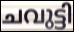
ചവുട്ടി